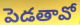
పెడతావో